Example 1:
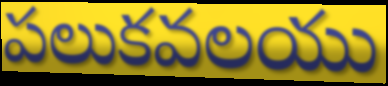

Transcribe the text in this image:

పలుకవలయు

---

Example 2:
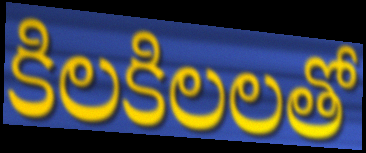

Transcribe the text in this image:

కిలకిలలతో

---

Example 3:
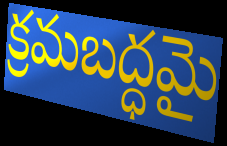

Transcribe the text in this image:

క్రమబద్ధమై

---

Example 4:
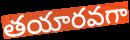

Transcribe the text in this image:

తయారవగా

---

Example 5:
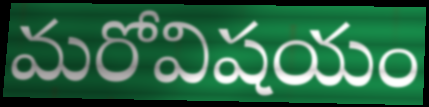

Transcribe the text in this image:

మరోవిషయం